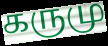
கருமு